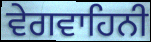
ਵੇਗਵਾਹਿਨੀ